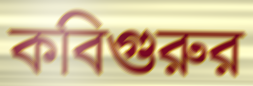
কবিগুরুর